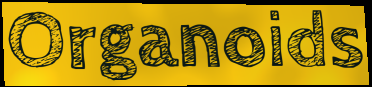
Organoids